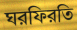
ঘরফিরতি